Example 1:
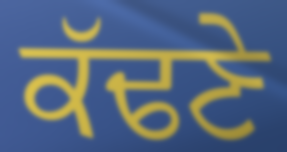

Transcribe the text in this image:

ਕੱਢਣੇ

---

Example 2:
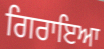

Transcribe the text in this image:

ਗਿਰਾਇਆ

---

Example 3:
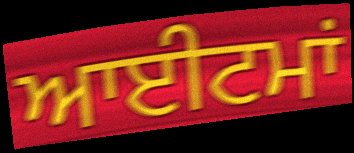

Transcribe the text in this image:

ਆਈਟਮਾਂ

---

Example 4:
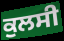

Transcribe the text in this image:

ਕੁਲਸੀ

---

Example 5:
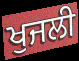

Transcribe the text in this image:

ਖੁਜਲੀ